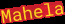
Mahela